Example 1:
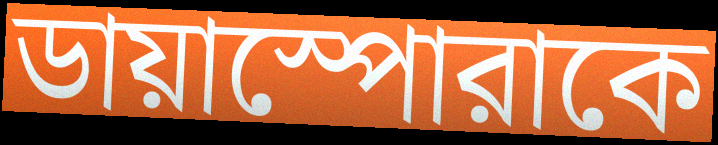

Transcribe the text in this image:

ডায়াস্পোরাকে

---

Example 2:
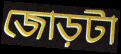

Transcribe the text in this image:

জোড়টা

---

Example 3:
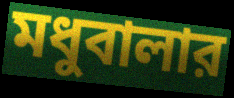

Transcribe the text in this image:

মধুবালার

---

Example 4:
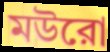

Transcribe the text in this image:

মউরো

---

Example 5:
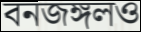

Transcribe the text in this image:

বনজঙ্গলও